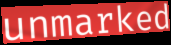
unmarked